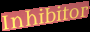
Inhibitor